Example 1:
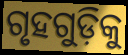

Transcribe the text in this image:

ଗୃହଗୁଡ଼ିକୁ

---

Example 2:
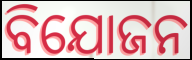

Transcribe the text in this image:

ବିଯୋଜନ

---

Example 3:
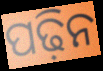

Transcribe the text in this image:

ପଢ଼ିନ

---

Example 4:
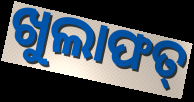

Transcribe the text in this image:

ଖୁଲାଫତ୍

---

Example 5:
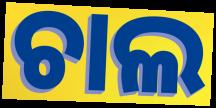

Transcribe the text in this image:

ଚାଲ